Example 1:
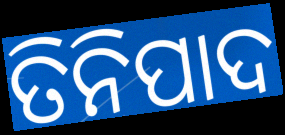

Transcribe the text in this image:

ତିନିପାଦ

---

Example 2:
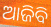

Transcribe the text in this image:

ଆଜିବି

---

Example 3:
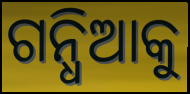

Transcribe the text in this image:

ଗନ୍ଧିଆକୁ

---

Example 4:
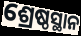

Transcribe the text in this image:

ଶ୍ରେଷ୍ଠସ୍ଥାନ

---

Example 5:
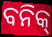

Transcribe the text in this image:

ବନିକ୍